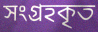
সংগ্রহকৃত